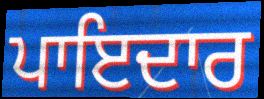
ਪਾਇਦਾਰ